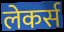
लेकर्स